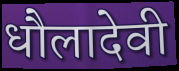
धौलादेवी